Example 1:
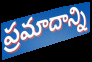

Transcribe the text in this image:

ప్రమాదాన్ని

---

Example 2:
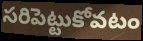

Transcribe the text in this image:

సరిపెట్టుకోవటం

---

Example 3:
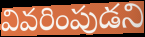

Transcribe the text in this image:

వివరింపుడని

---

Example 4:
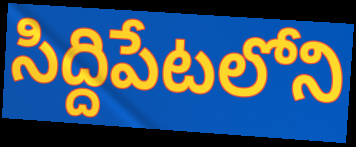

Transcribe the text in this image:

సిద్దిపేటలోని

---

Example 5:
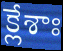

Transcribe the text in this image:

క్లేశాః